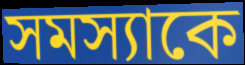
সমস্যাকে